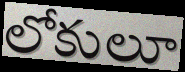
లోకులూ